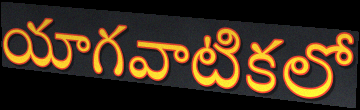
యాగవాటికలో